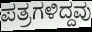
ಪತ್ರಗಳಿದ್ದವು